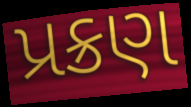
પ્રક્રણ